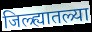
जिल्ह्यातल्या